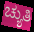
ಚ್ಯುತಿ